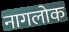
नागलोक